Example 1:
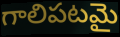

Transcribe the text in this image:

గాలిపటమై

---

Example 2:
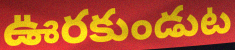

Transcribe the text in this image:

ఊరకుండుట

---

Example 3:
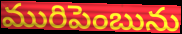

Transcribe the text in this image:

మురిపెంబును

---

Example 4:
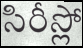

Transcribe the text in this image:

సిరీస్లో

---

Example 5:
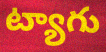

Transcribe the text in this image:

ట్యాగు